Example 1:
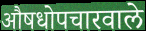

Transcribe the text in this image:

औषधोपचारवाले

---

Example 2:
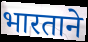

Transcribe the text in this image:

भारताने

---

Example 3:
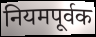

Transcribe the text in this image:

नियमपूर्वक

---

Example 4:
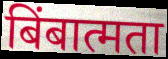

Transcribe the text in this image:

बिंबात्मता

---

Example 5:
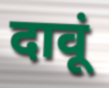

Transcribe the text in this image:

दावूं